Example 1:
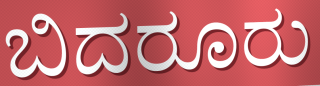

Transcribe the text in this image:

ಬಿದರೂರು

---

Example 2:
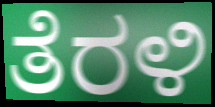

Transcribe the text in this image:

ತೆರಳಿ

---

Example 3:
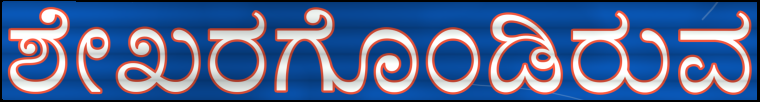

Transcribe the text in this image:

ಶೇಖರಗೊಂಡಿರುವ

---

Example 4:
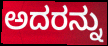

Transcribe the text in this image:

ಅದರನ್ನು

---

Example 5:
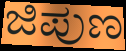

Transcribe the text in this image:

ಜಿಪುಣ